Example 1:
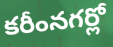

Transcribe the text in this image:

కరీంనగర్లో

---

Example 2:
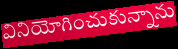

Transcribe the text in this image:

వినియోగించుకున్నాను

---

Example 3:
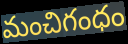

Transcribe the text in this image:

మంచిగంధం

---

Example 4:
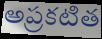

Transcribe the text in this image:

అప్రకటిత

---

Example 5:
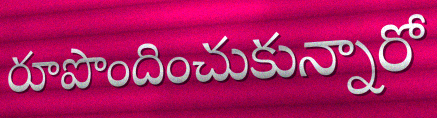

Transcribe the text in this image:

రూపొందించుకున్నారో